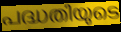
പദ്ധതിയുടെ